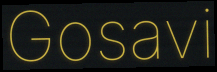
Gosavi